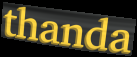
thanda